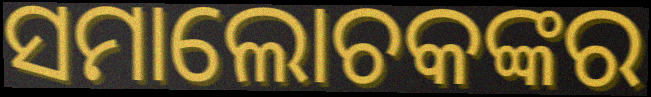
ସମାଲୋଚକଙ୍କର